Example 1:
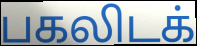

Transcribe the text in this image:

பகலிடக்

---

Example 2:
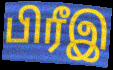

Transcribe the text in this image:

பிரீஇ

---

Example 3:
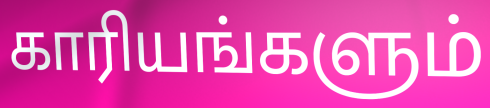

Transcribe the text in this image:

காரியங்களும்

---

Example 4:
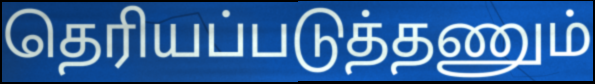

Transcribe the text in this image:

தெரியப்படுத்தணும்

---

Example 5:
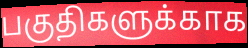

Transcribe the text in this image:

பகுதிகளுக்காக